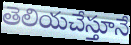
తెలియచేస్తూనే